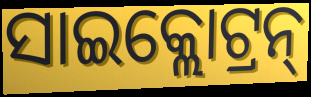
ସାଇକ୍ଲୋଟ୍ରନ୍